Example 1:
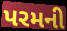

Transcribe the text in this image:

પરમની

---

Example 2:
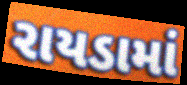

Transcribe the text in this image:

રાયડામાં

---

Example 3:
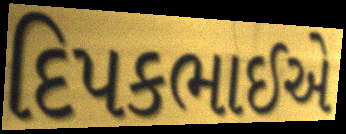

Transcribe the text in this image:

દિપકભાઈએ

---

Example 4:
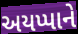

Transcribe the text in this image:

અયપ્પાને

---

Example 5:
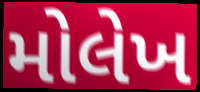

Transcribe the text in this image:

મોલેખ